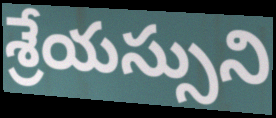
శ్రేయస్సుని